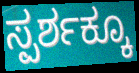
ಸ್ಪರ್ಶಕ್ಕೂ